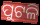
ପୁଟଳି